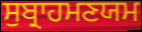
ਸੁਬ੍ਰਾਹਮਣਯਮ